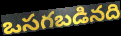
ఒసగబడినది